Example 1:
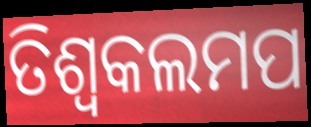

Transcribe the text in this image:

ତିଶ୍ୱକଲମପ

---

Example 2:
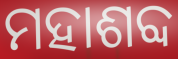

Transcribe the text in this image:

ମହାଶବ୍ଦ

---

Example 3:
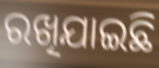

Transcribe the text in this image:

ରଖିଯାଇଛି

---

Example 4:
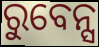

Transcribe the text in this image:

ରୁବେନ୍ସ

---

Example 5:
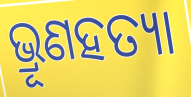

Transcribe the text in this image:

ଭ୍ରୂଣହତ୍ୟା